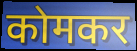
कोमकर